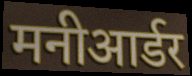
मनीआर्डर